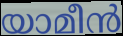
യാമീൻ